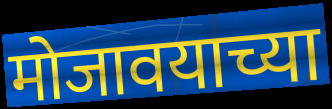
मोजावयाच्या